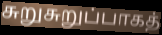
சுறுசுறுப்பாகத்